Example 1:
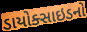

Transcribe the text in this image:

ડાયોક્સાઇડનો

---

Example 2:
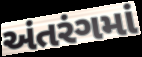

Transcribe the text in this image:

અંતરંગમાં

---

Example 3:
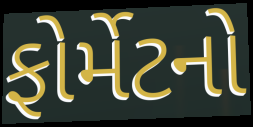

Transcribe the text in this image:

ફોર્મેટનો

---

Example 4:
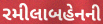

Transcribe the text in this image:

રમીલાબહેનની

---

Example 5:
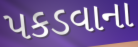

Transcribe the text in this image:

પકડવાના